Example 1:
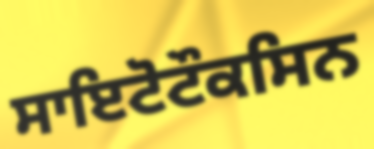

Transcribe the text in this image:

ਸਾਇਟੋਟੌਕਸਿਨ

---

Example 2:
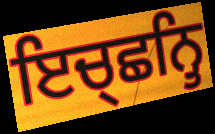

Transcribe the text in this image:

ਇਚ੍ਛਨ੍ਤਿ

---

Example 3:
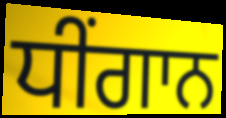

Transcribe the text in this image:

ਧੀਂਗਾਨ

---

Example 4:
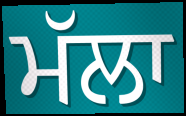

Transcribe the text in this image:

ਮੱਲਾ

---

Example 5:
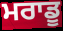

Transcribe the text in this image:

ਮਰਾਡੂ